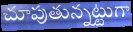
చూపుతున్నట్టుగా